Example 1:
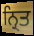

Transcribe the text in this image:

ਨ੍ਰਿਤ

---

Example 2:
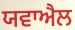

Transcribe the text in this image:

ਯਵਾਐਲ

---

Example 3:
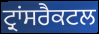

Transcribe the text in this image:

ਟ੍ਰਾਂਸਰੈਕਟਲ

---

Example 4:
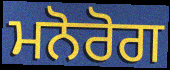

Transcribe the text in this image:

ਮਨੋਰੋਗ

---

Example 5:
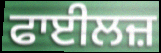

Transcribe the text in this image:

ਫਾਈਲਜ਼